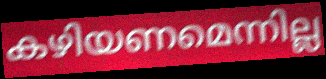
കഴിയണമെന്നില്ല